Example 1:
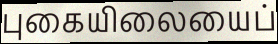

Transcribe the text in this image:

புகையிலையைப்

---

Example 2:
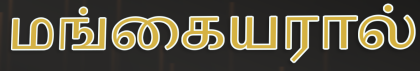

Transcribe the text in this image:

மங்கையரால்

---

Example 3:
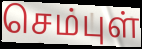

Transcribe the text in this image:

செம்புள்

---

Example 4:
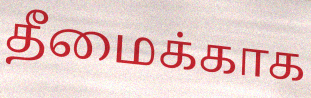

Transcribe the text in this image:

தீமைக்காக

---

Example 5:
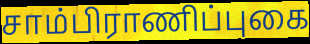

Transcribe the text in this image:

சாம்பிராணிப்புகை